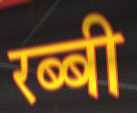
रब्बी